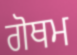
ਗੋਥਮ